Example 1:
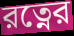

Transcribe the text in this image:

রত্নের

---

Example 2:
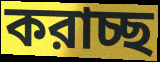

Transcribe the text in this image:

করাচ্ছ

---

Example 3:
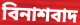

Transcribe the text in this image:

বিনাশবাদ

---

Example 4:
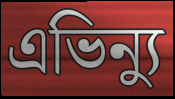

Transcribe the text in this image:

এভিন্যু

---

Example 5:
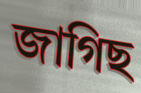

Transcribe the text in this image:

জাগিছ